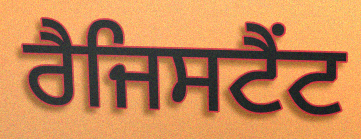
ਰੈਜਿਸਟੈਂਟ